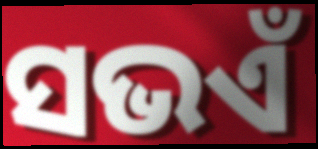
ସଭଏଁ